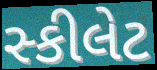
સ્કીલેટ